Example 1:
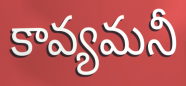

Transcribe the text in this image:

కావ్యమనీ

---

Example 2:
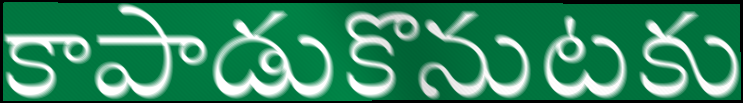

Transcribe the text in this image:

కాపాడుకొనుటకు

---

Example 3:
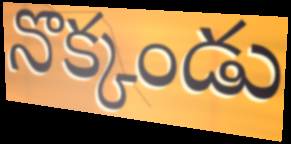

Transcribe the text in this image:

నొక్కండు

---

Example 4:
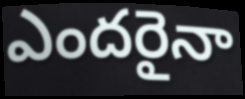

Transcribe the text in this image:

ఎందరైనా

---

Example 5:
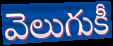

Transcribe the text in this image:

వెలుగుకీ